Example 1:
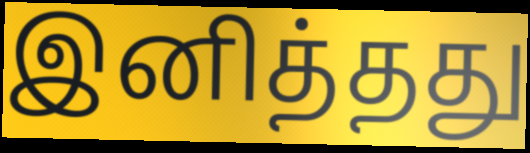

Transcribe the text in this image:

இனித்தது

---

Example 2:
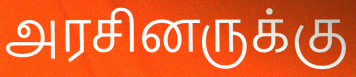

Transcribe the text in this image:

அரசினருக்கு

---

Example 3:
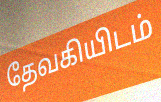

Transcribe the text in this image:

தேவகியிடம்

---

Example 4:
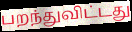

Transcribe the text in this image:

பறந்துவிட்டது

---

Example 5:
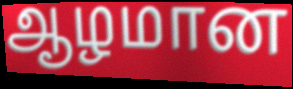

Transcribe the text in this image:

ஆழமான